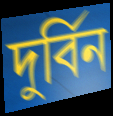
দুর্বিন